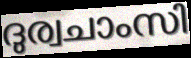
ദുര്വചാംസി